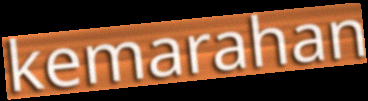
kemarahan